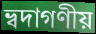
ভ্বদাগণীয়